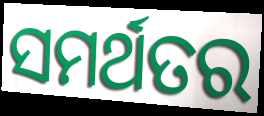
ସମର୍ଥତର